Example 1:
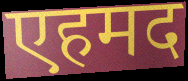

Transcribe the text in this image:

एहमद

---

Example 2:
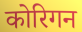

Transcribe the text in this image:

कोरिगन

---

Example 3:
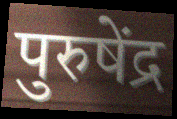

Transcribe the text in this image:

पुरुषेंद्र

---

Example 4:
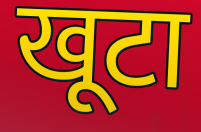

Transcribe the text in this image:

खूटा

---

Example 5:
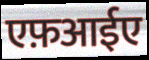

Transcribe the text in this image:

एफ़आईए